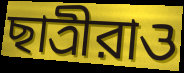
ছাত্রীরাও